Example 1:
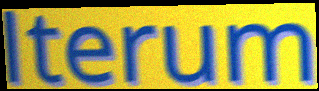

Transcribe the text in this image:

Iterum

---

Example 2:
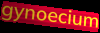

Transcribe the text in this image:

gynoecium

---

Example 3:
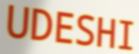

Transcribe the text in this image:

UDESHI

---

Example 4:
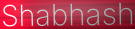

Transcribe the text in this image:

Shabhash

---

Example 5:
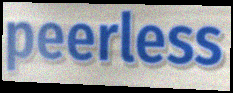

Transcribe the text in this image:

peerless